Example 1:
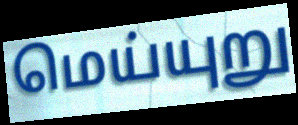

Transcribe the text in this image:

மெய்யுறு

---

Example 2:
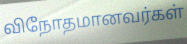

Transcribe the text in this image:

விநோதமானவர்கள்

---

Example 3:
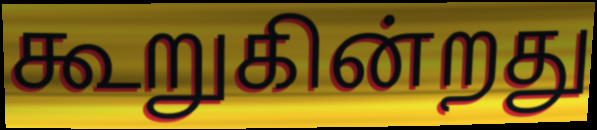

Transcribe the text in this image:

கூறுகின்றது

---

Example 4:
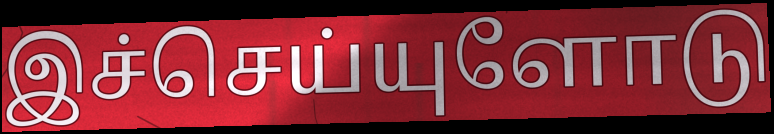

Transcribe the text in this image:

இச்செய்யுளோடு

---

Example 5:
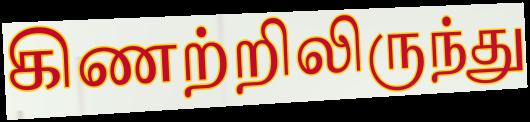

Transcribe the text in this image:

கிணற்றிலிருந்து